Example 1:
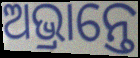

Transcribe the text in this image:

ଅଭ୍ରାନ୍ତେ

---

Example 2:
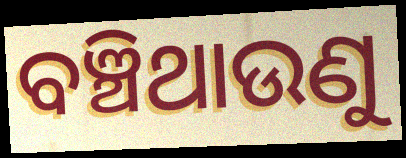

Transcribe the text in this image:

ବଞ୍ଚିଥାଉଣୁ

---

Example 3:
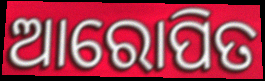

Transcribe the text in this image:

ଆରୋପିତ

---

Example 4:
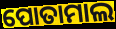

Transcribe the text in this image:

ପୋତାମାଲ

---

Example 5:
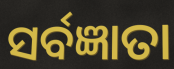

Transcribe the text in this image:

ସର୍ବଜ୍ଞାତା